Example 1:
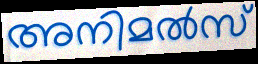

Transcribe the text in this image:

അനിമൽസ്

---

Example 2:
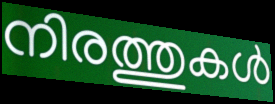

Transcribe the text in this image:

നിരത്തുകൾ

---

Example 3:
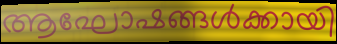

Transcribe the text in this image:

ആഘോഷങ്ങൾക്കായി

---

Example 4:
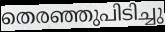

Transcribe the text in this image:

തെരഞ്ഞുപിടിച്ചു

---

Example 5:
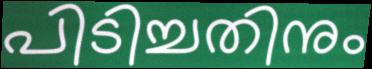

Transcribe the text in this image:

പിടിച്ചതിനും